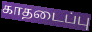
காதடைப்பு